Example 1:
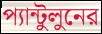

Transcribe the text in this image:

প্যান্টুলুনের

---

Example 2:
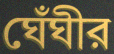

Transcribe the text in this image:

ঘেঁঘীর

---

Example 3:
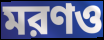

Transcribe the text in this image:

মরণও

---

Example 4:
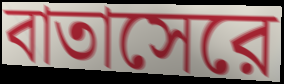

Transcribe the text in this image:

বাতাসেরে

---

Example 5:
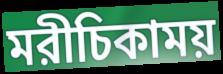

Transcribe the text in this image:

মরীচিকাময়